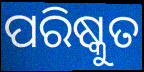
ପରିଷ୍କୁତ